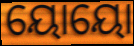
ୟୋୟୋ